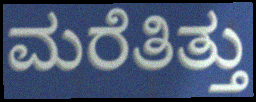
ಮರೆತಿತ್ತು